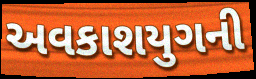
અવકાશયુગની